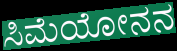
ಸಿಮೆಯೋನನ